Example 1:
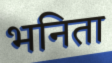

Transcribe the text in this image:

भनिता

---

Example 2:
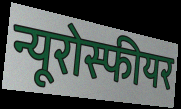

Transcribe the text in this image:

न्यूरोस्फीयर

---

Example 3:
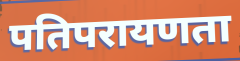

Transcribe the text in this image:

पतिपरायणता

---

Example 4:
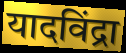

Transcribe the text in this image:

यादविंद्रा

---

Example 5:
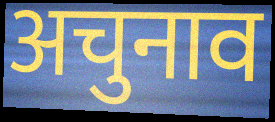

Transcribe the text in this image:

अचुनाव